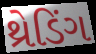
થ્રેડિંગ